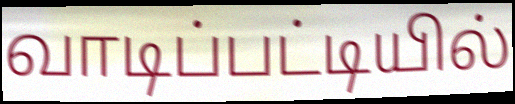
வாடிப்பட்டியில்